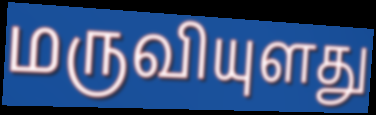
மருவியுளது